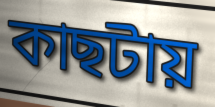
কাছটায়